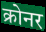
क्रोनर